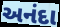
અનંદા